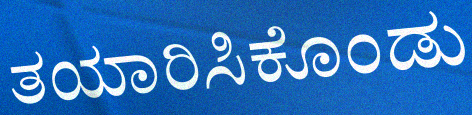
ತಯಾರಿಸಿಕೊಂಡು